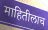
माहितीलाच